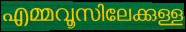
എമ്മവൂസിലേക്കുള്ള